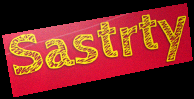
Sastrty